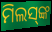
ମିଲସ୍‍ଙ୍କ